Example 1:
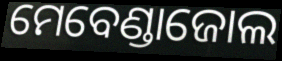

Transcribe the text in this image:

ମେବେଣ୍ଡାଜୋଲ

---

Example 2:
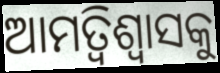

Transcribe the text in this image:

ଆମତ୍ବିଶ୍ୱାସକୁ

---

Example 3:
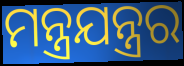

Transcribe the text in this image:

ମନ୍ତ୍ରଯନ୍ତ୍ରର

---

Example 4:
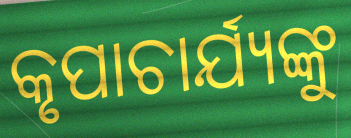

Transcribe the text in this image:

କୃପାଚାର୍ଯ୍ୟଙ୍କୁ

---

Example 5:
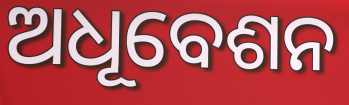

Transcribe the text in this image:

ଅଧୂବେଶନ